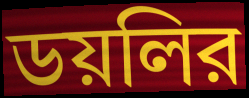
ডয়লির